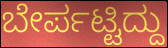
ಬೇರ್ಪಟ್ಟಿದ್ದು